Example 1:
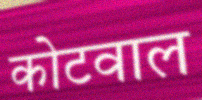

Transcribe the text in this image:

कोटवाल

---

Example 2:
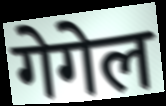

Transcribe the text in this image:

गेगेल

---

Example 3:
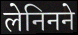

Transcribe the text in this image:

लेनिनने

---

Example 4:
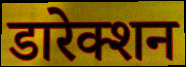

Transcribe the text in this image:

डारेक्शन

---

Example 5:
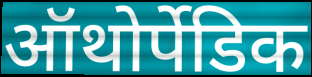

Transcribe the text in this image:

ऑथोर्पेडिक